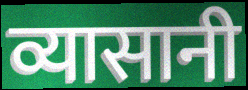
व्यासानी